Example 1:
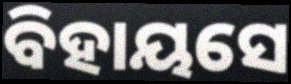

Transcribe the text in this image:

ବିହାୟସେ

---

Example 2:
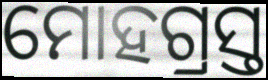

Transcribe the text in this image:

ମୋହଗ୍ରସ୍ତ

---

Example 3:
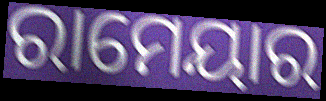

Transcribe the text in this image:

ରାମେୟାର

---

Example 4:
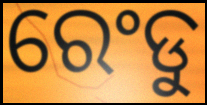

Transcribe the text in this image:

ରେଂଡୁ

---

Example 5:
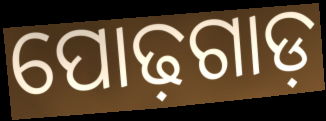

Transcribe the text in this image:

ପୋଢ଼ଗାଡ଼